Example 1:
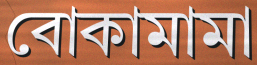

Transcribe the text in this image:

বোকামামা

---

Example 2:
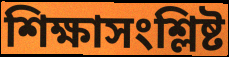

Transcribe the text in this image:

শিক্ষাসংশ্লিষ্ট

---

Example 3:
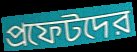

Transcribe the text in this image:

প্রফেটদের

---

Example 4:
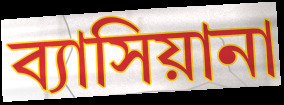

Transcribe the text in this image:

ব্যাসিয়ানা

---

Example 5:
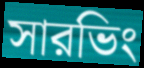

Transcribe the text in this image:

সারভিং